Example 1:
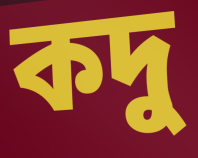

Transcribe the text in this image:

কদু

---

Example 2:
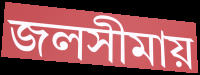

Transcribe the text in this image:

জলসীমায়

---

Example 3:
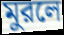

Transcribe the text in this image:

মুরলে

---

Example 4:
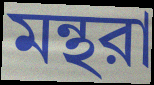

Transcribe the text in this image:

মন্থরা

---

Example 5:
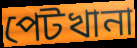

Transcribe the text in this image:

পেটখানা